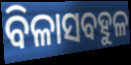
ବିଳାସବହୁଳ